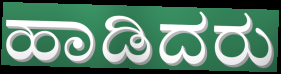
ಹಾಡಿದರು